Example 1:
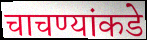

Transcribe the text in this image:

चाचण्यांकडे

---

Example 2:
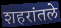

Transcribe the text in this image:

शहरांतले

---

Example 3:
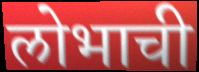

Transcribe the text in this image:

लोभाची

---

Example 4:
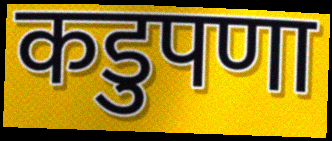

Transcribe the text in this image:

कडुपणा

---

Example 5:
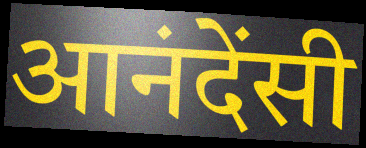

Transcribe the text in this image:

आनंदेंसी